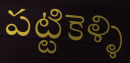
పట్టికెళ్ళి